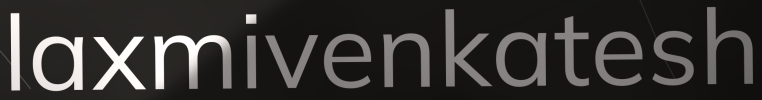
laxmivenkatesh